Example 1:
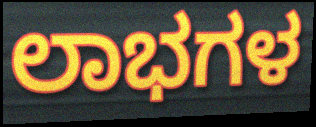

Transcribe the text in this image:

ಲಾಭಗಳ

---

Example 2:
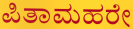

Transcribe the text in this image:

ಪಿತಾಮಹರೇ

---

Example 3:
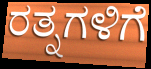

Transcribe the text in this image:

ರತ್ನಗಳಿಗೆ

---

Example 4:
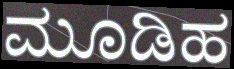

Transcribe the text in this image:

ಮೂಡಿಹ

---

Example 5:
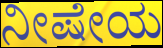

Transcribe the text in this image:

ನೀಷೇಯ